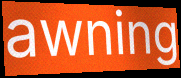
awning